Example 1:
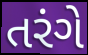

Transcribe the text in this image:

તરંગે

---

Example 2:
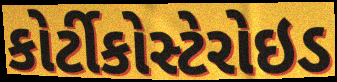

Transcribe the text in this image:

કોર્ટીકોસ્ટેરોઇડ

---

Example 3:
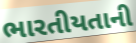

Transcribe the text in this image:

ભારતીયતાની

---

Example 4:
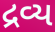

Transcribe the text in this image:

દ્રવ્ય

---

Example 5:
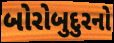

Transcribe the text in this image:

બોરોબુદુરનો